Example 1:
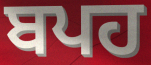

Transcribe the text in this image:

ਬਪਹ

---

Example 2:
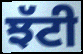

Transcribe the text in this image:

ਝੱਟੀ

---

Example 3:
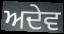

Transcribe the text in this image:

ਅਦੇਵ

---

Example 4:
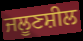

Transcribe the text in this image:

ਜਲੂਣਸ਼ੀਲ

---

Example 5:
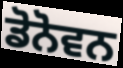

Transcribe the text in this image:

ਡੋਨੋਵਨ